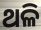
ଥଳି